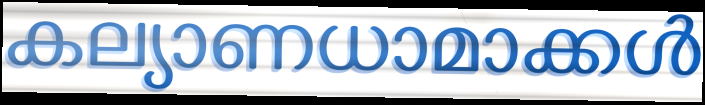
കല്യാണധാമാക്കൾ